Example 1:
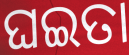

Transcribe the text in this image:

ଘଇତା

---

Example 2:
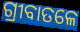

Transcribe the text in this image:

ଗ୍ରୀବାତଳେ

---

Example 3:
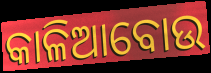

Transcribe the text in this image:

କାଳିଆବୋଉ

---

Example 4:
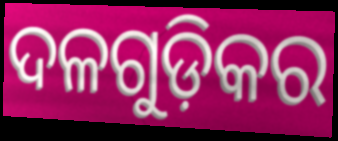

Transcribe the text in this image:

ଦଳଗୁଡ଼ିକର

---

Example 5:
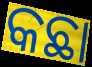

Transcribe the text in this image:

କଛା